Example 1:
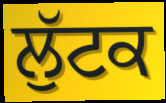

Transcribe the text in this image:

ਲੁੱਟਕ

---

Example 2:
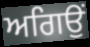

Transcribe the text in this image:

ਅਗਿਉਂ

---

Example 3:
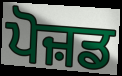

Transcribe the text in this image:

ਪੋਜ਼ਡ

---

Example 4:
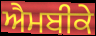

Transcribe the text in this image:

ਐਮਬੀਕੇ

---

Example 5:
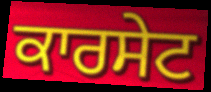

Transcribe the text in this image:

ਕਾਰਸੇਟ